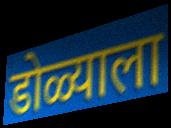
डोळ्याला